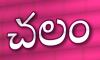
చలం